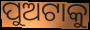
ପୁଅଟାକୁ